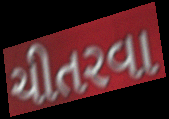
ચીતરવા